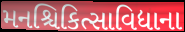
મનશ્ચિકિત્સાવિદ્યાના